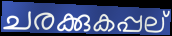
ചരക്കുകപ്പല്